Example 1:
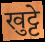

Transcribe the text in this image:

खुट्टे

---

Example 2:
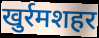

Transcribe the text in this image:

खुर्रमशहर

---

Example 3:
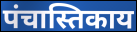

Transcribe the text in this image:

पंचास्तिकाय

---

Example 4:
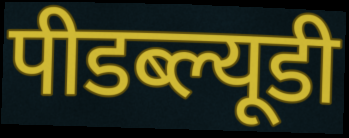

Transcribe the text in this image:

पीडब्ल्यूडी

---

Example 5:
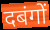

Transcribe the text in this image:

दबंगों